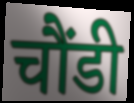
चौंडी